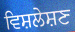
ਵਿਸ਼ਲੇਸ਼ਣ